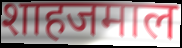
शाहजमाल